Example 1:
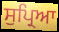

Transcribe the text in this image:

ਸੁਪ੍ਰਿਆ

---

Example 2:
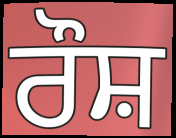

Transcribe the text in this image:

ਰੌਸ਼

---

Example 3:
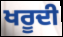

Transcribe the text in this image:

ਖਰੂਦੀ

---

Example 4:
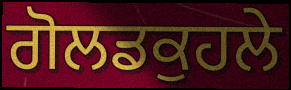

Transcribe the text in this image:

ਗੋਲਡਕੁਹਲੇ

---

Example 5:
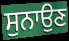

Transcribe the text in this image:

ਸੁਨਾਉਣ